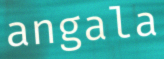
angala